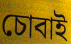
চোবাই